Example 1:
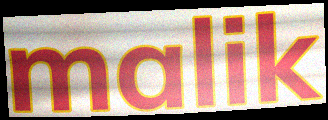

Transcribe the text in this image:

malik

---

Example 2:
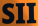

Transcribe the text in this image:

SII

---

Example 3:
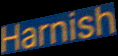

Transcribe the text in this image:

Harnish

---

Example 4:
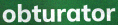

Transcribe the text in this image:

obturator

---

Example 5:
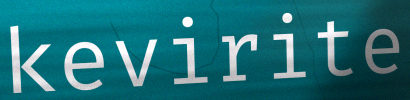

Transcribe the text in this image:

kevirite